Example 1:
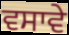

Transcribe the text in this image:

ਵਸਾਵੇ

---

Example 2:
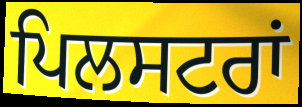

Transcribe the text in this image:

ਪਿਲਸਟਰਾਂ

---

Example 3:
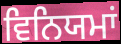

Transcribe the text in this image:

ਵਿਨਿਯਮਾਂ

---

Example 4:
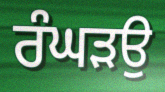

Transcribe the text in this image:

ਰੰਘੜਉ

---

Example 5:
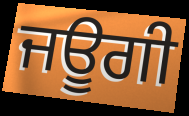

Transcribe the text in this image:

ਜਊਗੀ